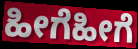
ಹೀಗೆಹೀಗೆ